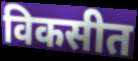
विकसीत